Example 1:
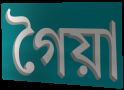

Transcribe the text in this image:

গৈয়া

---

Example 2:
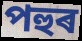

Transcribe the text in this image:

পহুৰ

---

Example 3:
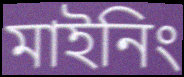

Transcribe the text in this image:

মাইনিং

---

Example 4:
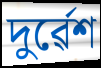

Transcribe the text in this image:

দুৰ্ৱেশ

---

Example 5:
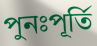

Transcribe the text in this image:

পুনঃপূৰ্তি